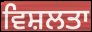
ਵਿਸ਼ਲਤਾ